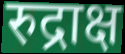
रुद्राक्ष